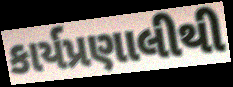
કાર્યપ્રણાલીથી